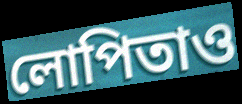
লোপিতাও